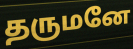
தருமனே